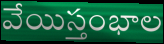
వేయిస్తంభాల